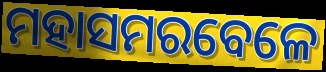
ମହାସମରବେଳେ